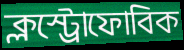
ক্লস্ট্রোফোবিক